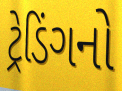
ટ્રેડિંગનો